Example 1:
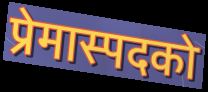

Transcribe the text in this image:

प्रेमास्पदको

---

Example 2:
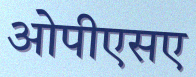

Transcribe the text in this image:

ओपीएसए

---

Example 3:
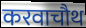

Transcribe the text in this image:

करवाचौथ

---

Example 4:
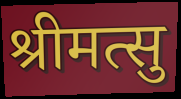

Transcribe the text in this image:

श्रीमत्सु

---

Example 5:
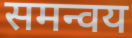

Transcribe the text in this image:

समन्वय